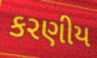
કરણીય